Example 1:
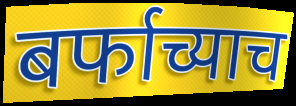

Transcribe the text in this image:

बर्फाच्याच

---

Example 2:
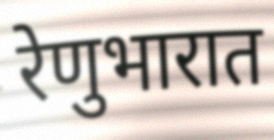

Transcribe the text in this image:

रेणुभारात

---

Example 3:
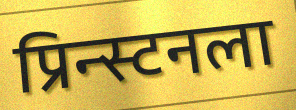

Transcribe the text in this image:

प्रिन्स्टनला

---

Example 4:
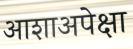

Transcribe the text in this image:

आशाअपेक्षा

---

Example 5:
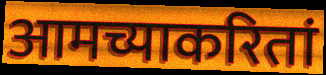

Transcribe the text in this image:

आमच्याकरितां